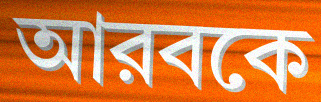
আরবকে